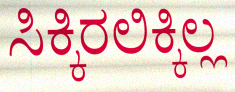
ಸಿಕ್ಕಿರಲಿಕ್ಕಿಲ್ಲ